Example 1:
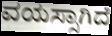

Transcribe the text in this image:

ವಯಸ್ಸಾಗಿದೆ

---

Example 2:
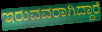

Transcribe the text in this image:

ಇರುವವರಾಗಿದ್ದಾರೆ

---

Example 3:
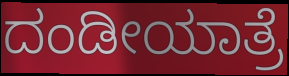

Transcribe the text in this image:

ದಂಡೀಯಾತ್ರೆ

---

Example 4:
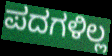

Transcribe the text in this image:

ಪದಗಳಿಲ್ಲ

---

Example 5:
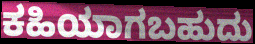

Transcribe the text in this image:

ಕಹಿಯಾಗಬಹುದು